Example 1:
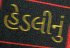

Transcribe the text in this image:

હેડલીનું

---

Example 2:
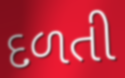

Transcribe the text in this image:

દળતી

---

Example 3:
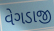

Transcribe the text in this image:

વેગડાજી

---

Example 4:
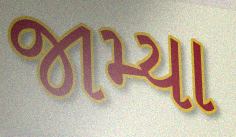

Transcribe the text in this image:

જામ્યા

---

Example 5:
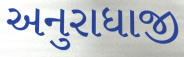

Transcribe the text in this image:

અનુરાધાજી